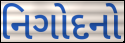
નિગોદનો